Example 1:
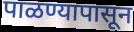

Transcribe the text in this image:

पाळण्यापासून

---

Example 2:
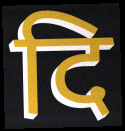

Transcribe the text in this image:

दि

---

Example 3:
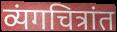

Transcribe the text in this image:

व्यंगचित्रांत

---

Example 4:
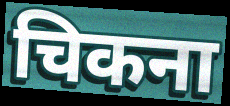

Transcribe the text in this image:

चिकना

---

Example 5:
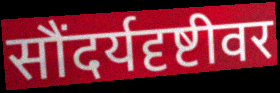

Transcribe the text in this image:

सौंदर्यदृष्टीवर